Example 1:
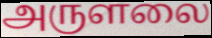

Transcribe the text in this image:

அருளலை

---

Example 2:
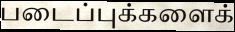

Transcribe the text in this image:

படைப்புக்களைக்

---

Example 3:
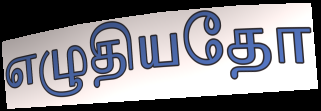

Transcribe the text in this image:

எழுதியதோ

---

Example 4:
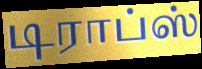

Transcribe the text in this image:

டிராப்ஸ்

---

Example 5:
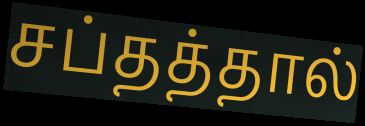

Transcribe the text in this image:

சப்தத்தால்